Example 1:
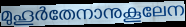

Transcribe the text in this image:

മുഹൂർതേനാനുകൂലേന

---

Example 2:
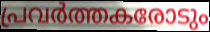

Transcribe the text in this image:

പ്രവർത്തകരോടും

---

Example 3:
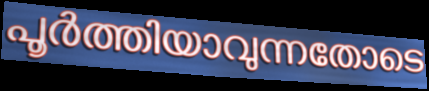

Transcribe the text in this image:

പൂർത്തിയാവുന്നതോടെ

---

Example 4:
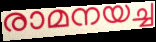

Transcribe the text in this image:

രാമനയച്ച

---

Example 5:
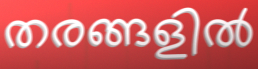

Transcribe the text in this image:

തരങ്ങളിൽ